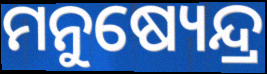
ମନୁଷ୍ୟେନ୍ଦ୍ର